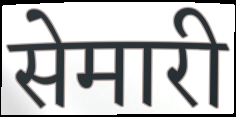
सेमारी